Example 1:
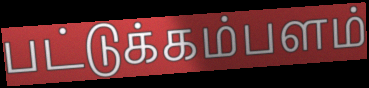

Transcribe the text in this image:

பட்டுக்கம்பளம்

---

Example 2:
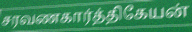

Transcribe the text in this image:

சரவணகார்த்திகேயன்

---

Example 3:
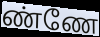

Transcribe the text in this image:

ண்ணே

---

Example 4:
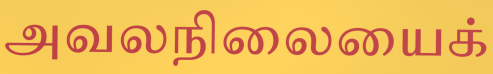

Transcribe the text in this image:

அவலநிலையைக்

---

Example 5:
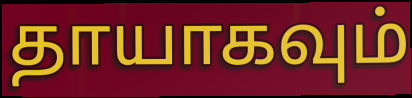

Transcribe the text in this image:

தாயாகவும்